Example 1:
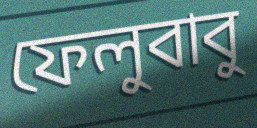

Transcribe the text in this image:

ফেলুবাবু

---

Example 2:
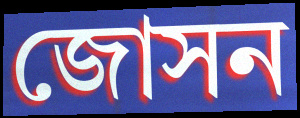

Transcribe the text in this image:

জোসন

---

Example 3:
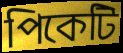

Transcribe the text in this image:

পিকেটি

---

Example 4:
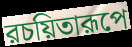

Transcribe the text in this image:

রচয়িতারূপে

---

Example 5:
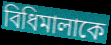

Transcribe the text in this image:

বিধিমালাকে